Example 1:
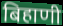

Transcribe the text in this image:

बिहाणी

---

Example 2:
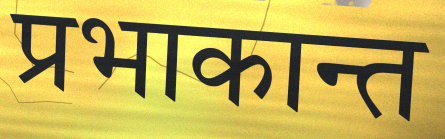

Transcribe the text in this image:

प्रभाकान्त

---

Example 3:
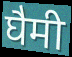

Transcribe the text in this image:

घैमी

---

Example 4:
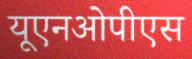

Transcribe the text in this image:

यूएनओपीएस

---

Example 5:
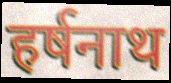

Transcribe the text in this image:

हर्षनाथ